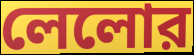
লেলোর